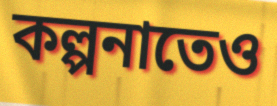
কল্পনাতেও